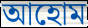
আহোম